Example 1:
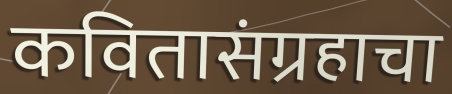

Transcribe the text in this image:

कवितासंग्रहाचा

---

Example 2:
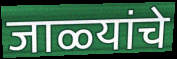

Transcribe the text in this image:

जाळ्यांचे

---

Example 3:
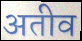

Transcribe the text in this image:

अतीव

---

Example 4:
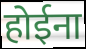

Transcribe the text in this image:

होईना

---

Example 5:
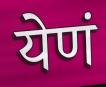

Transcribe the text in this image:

येणं